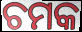
ଚମକ